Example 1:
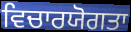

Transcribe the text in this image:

ਵਿਚਾਰਯੋਗਤਾ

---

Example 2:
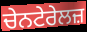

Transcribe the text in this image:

ਚੇਨਟੇਰੇਲਜ਼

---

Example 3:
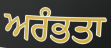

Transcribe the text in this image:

ਅਰੰਭਤਾ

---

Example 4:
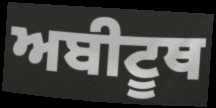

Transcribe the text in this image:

ਅਬੀਟੂਥ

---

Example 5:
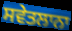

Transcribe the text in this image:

ਸਵੇਤਲਾਨਾ